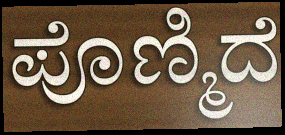
ಪೊಣ್ಮಿದೆ